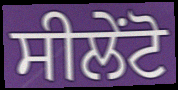
ਸੀਲੇਂਟੋ